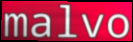
malvo